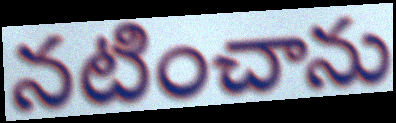
నటించాను